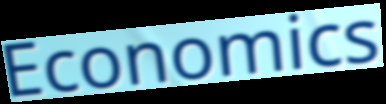
Economics